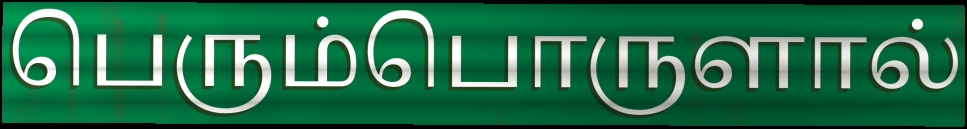
பெரும்பொருளால்